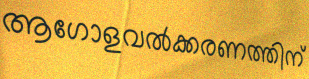
ആഗോളവൽക്കരണത്തിന്